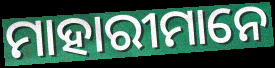
ମାହାରୀମାନେ